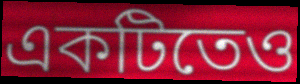
একটিতেও